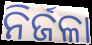
ନିର୍ଜଳା